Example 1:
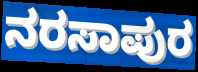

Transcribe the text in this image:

ನರಸಾಪುರ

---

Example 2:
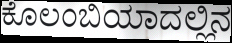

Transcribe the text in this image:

ಕೊಲಂಬಿಯಾದಲ್ಲಿನ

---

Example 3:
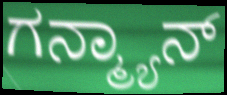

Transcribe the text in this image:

ಗನ್ಮ್ಯಾನ್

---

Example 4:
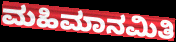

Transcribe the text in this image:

ಮಹಿಮಾನಮಿತಿ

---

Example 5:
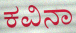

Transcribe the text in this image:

ಕವಿನಾ